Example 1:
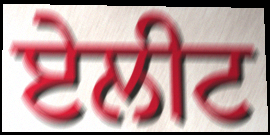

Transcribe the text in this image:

ਏਲੀਟ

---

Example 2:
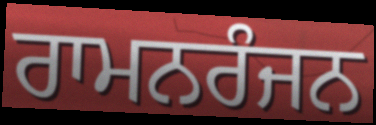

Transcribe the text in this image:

ਰਾਮਨਰੰਜਨ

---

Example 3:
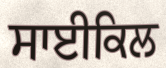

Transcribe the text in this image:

ਸਾਈਕਿਲ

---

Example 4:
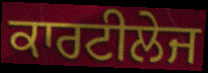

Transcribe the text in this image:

ਕਾਰਟੀਲੇਜ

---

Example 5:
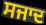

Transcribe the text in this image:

ਸਜਾਦ